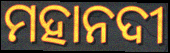
ମହାନଦୀ